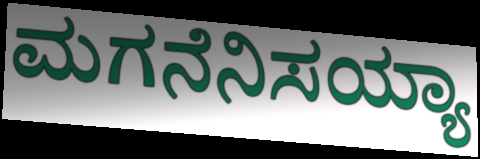
ಮಗನೆನಿಸಯ್ಯಾ